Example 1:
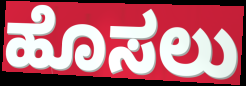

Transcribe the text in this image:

ಹೊಸಲು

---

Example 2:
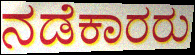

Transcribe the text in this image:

ನಡೆಕಾರರು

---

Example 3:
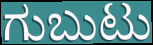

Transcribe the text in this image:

ಗುಬುಟು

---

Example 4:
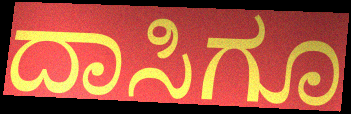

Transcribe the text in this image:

ದಾಸಿಗೂ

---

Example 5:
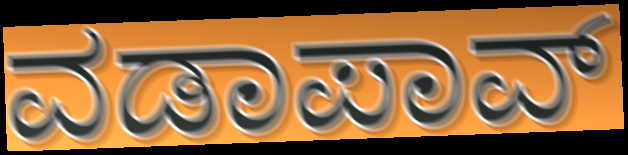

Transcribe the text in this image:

ವಡಾಪಾವ್